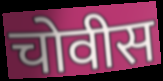
चोवीस